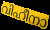
വിഹീനാ